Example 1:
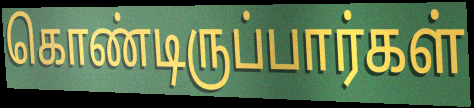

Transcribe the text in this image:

கொண்டிருப்பார்கள்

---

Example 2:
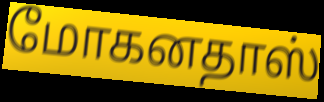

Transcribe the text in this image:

மோகனதாஸ்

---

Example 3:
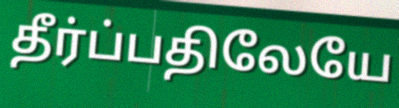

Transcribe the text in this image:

தீர்ப்பதிலேயே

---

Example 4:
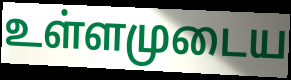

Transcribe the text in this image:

உள்ளமுடைய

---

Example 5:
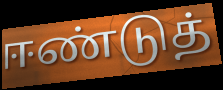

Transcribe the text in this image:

ஈண்டுத்